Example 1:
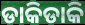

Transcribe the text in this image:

ଡାକିଡାକି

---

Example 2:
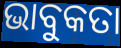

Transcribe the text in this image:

ଭାବୁକତା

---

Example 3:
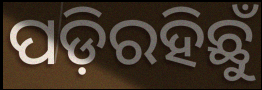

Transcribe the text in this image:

ପଡ଼ିରହିଛୁଁ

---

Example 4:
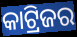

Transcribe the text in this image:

କାଟ୍ରିଜର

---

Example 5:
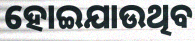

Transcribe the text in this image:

ହୋଇଯାଉଥିବ